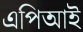
এপিআই